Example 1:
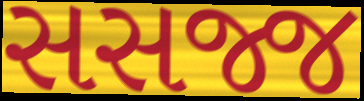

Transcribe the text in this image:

સસજ્જ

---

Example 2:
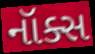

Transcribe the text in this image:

નૉક્સ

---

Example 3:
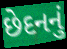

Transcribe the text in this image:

છેદનનું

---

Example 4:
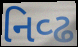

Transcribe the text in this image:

નિવ્ઢ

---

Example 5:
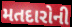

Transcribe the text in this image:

મતદારોની